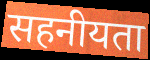
सहनीयता